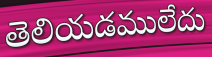
తెలియడములేదు